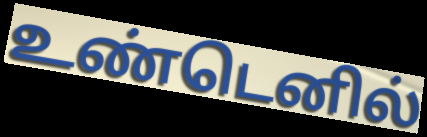
உண்டெனில்